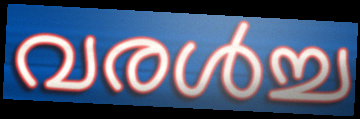
വരൾച്ച